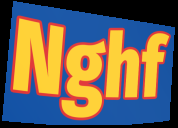
Nghf